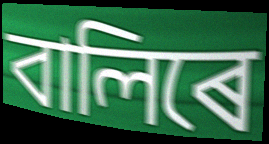
বালিৰে